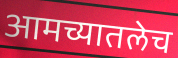
आमच्यातलेच